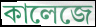
কালেজে